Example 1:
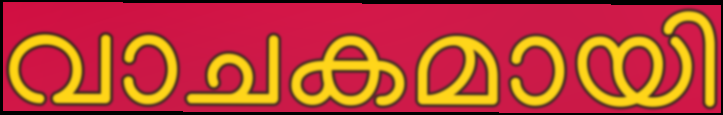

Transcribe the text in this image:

വാചകമായി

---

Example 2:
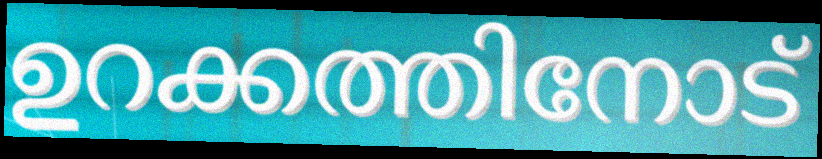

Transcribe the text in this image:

ഉറക്കത്തിനോട്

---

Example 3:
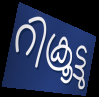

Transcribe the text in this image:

റിക്രൂട്ടു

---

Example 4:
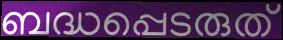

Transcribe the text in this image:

ബദ്ധപ്പെടരുത്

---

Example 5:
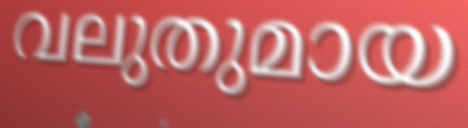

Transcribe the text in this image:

വലുതുമായ